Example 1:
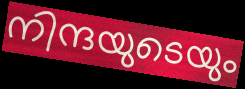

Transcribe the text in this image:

നിന്ദയുടെയും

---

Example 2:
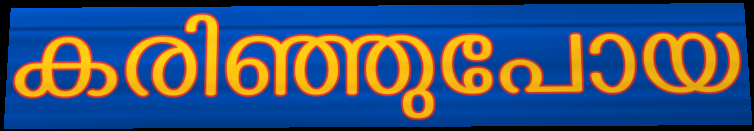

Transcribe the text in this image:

കരിഞ്ഞുപോയ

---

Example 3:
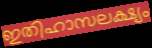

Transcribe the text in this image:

ഇതിഹാസലക്ഷ്യം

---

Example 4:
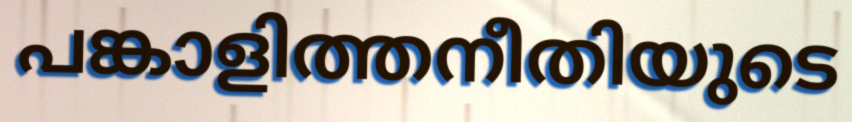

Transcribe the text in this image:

പങ്കാളിത്തനീതിയുടെ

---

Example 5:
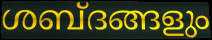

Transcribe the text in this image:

ശബ്ദങ്ങളും